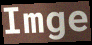
Imge